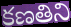
కణతిని